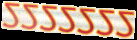
ऽऽऽऽऽऽऽ